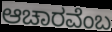
ಆಚಾರವೆಂಬ